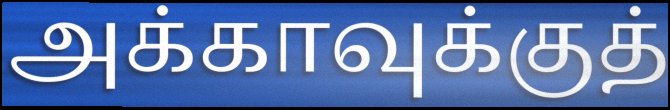
அக்காவுக்குத்